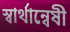
স্বার্থান্বেষী